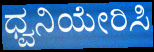
ಧ್ವನಿಯೇರಿಸಿ